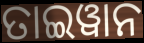
ତାଇୱାନ